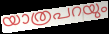
യാത്രപറയും